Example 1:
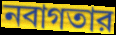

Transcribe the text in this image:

নবাগতার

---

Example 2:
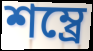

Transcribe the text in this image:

শম্ব্রে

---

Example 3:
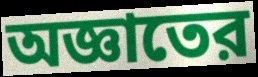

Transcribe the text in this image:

অজ্ঞাতের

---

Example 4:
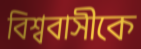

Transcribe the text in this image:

বিশ্ববাসীকে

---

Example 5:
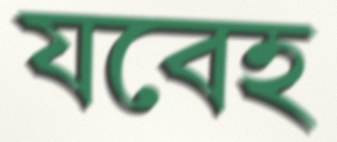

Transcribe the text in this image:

যবেহ